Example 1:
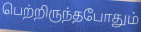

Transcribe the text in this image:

பெற்றிருந்தபோதும்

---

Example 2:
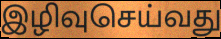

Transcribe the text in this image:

இழிவுசெய்வது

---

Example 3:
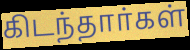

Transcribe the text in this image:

கிடந்தார்கள்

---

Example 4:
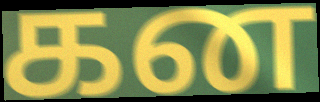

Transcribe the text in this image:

கன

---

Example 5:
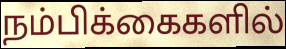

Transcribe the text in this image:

நம்பிக்கைகளில்